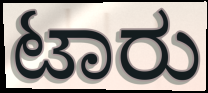
ಟಾರು